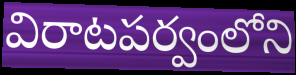
విరాటపర్వంలోని